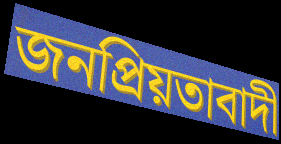
জনপ্ৰিয়তাবাদী